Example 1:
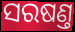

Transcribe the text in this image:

ସରଷଣ୍ତ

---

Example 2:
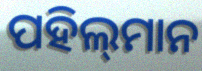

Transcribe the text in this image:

ପହିଲ୍‌ମାନ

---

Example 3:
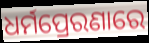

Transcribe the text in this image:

ଧର୍ମପ୍ରେରଣାରେ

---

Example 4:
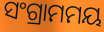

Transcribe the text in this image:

ସଂଗ୍ରାମମୟ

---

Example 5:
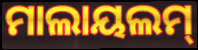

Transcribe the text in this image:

ମାଲାୟଲମ୍